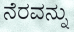
ನೆರವನ್ನು